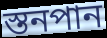
স্তনপান